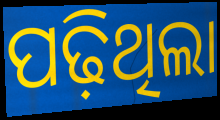
ପଢ଼ିଥିଲା